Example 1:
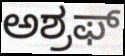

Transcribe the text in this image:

ಅಶ್ರಫ್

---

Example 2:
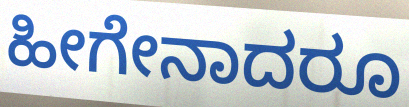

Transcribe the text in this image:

ಹೀಗೇನಾದರೂ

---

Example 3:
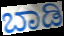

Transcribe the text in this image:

ಬಾಡಿ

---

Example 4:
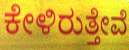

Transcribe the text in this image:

ಕೇಳಿರುತ್ತೇವೆ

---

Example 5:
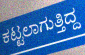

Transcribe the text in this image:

ಕಟ್ಟಲಾಗುತ್ತಿದ್ದ